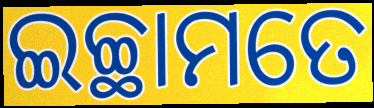
ଇଚ୍ଛାମତେ